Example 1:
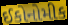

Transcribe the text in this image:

ઈકોનોમીક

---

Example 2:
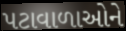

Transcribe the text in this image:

પટાવાળાઓને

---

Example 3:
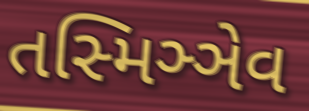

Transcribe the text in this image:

તસ્મિઞ્ઞેવ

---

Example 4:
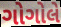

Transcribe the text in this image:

ગોગોલે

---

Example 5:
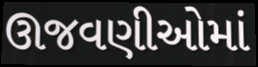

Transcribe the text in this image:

ઊજવણીઓમાં